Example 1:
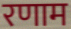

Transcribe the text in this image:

रणाम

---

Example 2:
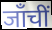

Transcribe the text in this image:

जाँचीं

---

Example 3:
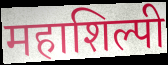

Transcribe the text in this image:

महाशिल्पी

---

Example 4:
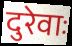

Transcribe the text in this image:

दुरेवाः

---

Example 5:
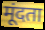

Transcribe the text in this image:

मूंदता